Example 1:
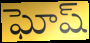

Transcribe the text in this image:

ఘోష్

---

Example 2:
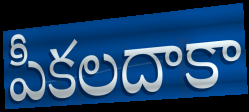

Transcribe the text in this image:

పీకలదాకా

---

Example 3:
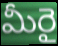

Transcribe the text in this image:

మీరై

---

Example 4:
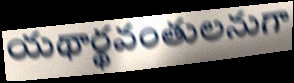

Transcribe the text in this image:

యథార్థవంతులనుగా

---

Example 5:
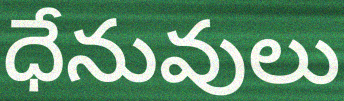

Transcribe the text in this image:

ధేనువులు